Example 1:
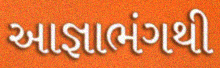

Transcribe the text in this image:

આજ્ઞાભંગથી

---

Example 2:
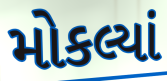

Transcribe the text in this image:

મોકલ્યાં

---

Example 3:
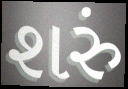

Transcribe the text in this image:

શરું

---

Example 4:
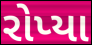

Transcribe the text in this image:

રોપ્યા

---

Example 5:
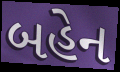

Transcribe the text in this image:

બહેન